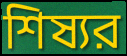
শিষ্যর